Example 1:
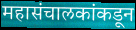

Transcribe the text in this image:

महासंचालकांकडून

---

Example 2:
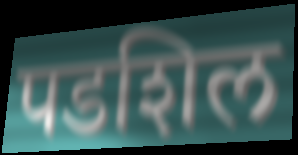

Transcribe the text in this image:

पडशिल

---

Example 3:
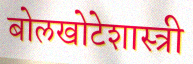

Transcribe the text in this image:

बोलखोटेशास्त्री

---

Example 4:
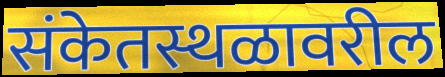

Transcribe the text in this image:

संकेतस्थळावरील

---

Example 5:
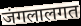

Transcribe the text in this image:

जंगलालगत